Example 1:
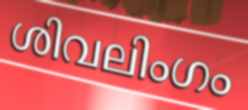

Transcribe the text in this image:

ശിവലിംഗം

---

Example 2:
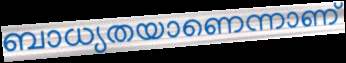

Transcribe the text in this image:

ബാധ്യതയാണെന്നാണ്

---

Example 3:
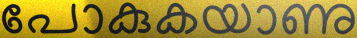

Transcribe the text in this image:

പോകുകയാണു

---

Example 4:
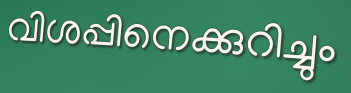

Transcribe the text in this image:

വിശപ്പിനെക്കുറിച്ചും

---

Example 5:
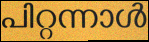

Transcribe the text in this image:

പിറ്റന്നാൾ